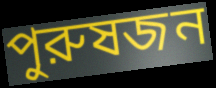
পুৰুষজন